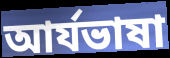
আর্যভাষা